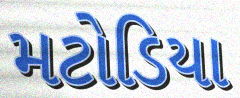
મટોડિયા